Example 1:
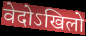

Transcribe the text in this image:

वेदोऽखिलो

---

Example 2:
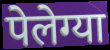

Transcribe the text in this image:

पेलेग्या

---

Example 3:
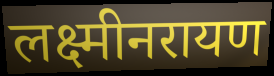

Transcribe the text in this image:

लक्ष्मीनरायण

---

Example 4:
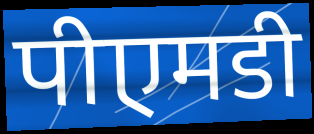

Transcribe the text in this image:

पीएमडी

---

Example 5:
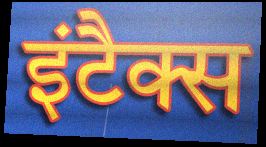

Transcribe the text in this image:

इंटैक्स